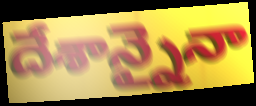
దేశాన్నైనా